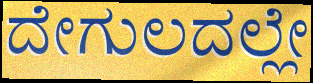
ದೇಗುಲದಲ್ಲೇ